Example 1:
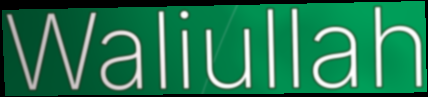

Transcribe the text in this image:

Waliullah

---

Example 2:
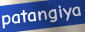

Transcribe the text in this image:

patangiya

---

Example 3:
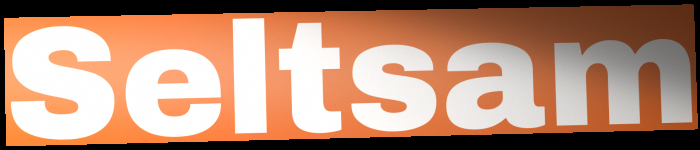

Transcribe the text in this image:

Seltsam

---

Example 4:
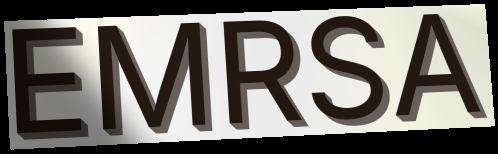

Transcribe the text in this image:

EMRSA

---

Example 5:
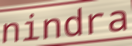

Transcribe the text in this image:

nindra